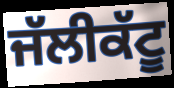
ਜੱਲੀਕੱਟੂ